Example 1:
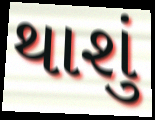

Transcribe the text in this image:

થાશું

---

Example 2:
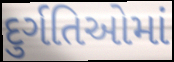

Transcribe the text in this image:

દુર્ગતિઓમાં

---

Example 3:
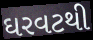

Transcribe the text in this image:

ઘરવટથી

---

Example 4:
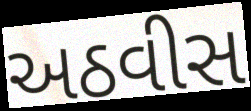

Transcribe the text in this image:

અઠવીસ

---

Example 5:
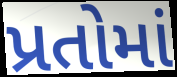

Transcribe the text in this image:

પ્રતોમાં